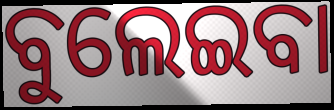
ବୁଲେଇବା